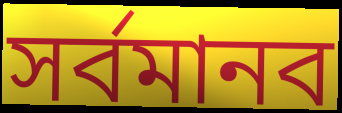
সর্বমানব